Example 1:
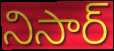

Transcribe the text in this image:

నిసార్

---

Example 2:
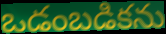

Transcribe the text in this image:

ఒడంబడికను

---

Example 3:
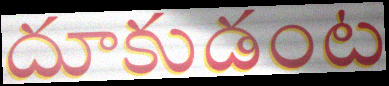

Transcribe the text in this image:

దూకుడంట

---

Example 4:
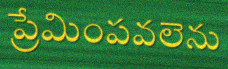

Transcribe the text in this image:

ప్రేమింపవలెను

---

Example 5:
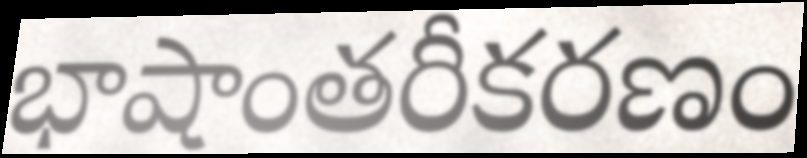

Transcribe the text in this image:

భాషాంతరీకరణం